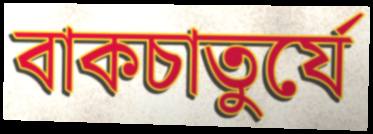
বাকচাতুর্যে